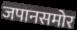
जपानसमोर